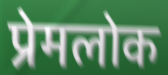
प्रेमलोक